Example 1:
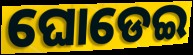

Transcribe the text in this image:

ଘୋଡେଇ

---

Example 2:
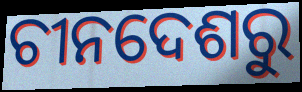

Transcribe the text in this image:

ଚୀନଦେଶରୁ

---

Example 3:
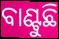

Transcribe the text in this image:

ବାଣ୍ଟୁଛି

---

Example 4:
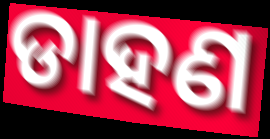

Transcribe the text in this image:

ଡାହଣ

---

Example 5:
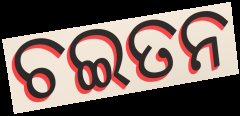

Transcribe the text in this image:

ଚଇତନ